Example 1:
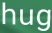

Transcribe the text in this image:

hug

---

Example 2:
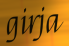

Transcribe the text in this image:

girja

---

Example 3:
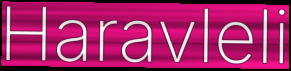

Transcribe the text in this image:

Haravleli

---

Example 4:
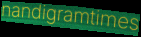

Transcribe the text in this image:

nandigramtimes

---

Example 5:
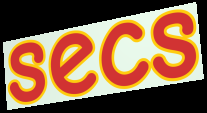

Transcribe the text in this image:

secs